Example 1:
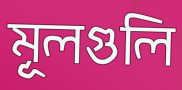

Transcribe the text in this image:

মূলগুলি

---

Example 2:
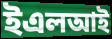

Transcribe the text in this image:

ইএলআই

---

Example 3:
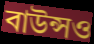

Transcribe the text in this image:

বাউন্সও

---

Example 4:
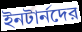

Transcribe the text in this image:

ইনটার্নদের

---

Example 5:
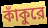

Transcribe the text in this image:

কাঁকুরে